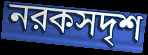
নরকসদৃশ